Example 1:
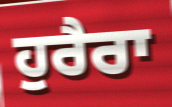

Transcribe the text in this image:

ਹੁਰੈਰਾ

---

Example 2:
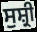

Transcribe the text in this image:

ਸੁਸ਼੍ਰੀ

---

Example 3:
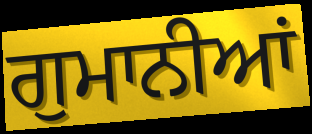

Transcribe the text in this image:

ਗੁਮਾਨੀਆਂ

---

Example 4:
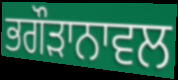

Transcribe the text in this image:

ਭਗੌੜਾਨਾਵਲ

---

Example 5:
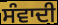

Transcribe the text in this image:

ਸੰਵਾਦੀ